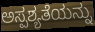
ಅಸ್ಪಶ್ಯತೆಯನ್ನು